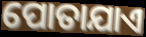
ପୋତାଯାଏ